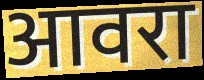
आवरा